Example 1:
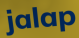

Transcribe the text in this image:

jalap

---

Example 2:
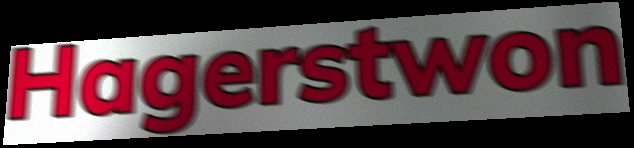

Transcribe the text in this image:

Hagerstwon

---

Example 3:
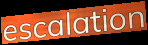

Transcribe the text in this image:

escalation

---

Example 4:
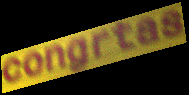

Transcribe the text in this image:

congrtas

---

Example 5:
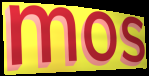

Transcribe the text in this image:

mos